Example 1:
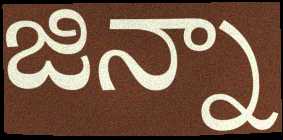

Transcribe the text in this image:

జిన్నా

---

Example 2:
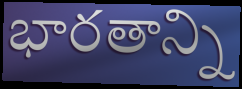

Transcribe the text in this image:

భారతాన్ని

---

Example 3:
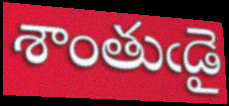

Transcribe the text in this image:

శాంతుఁడై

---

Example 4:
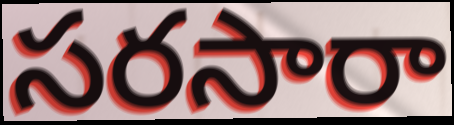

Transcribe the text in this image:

సరసారా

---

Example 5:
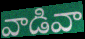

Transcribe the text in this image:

వాడివా